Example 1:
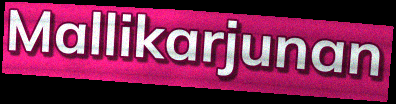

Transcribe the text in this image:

Mallikarjunan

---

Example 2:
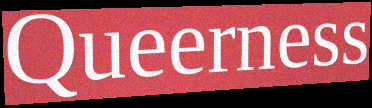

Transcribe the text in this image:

Queerness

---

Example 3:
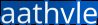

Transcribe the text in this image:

aathvle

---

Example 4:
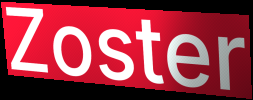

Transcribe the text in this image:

Zoster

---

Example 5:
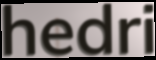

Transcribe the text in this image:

hedri